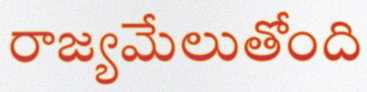
రాజ్యమేలుతోంది